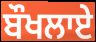
ਬੌਖਲਾਏ